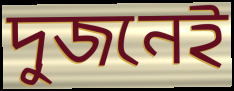
দুজনেই